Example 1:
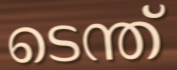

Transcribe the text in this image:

ടെന്ത്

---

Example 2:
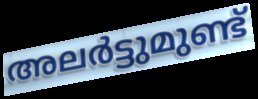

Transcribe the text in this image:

അലർട്ടുമുണ്ട്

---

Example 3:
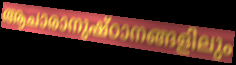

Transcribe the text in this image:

ആചാരാനുഷ്ഠാനങ്ങളിലും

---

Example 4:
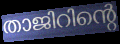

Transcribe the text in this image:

താജിറിന്റെ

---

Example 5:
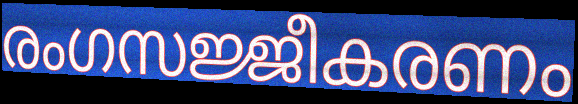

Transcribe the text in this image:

രംഗസജ്ജീകരണം